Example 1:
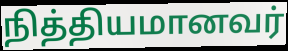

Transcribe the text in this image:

நித்தியமானவர்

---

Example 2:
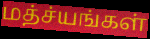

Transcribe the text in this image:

மத்ச்யங்கள்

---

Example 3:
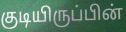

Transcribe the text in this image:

குடியிருப்பின்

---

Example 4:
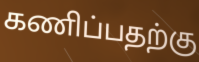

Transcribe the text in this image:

கணிப்பதற்கு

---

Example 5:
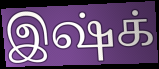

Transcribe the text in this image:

இஷ்க்